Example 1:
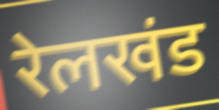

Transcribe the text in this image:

रेलखंड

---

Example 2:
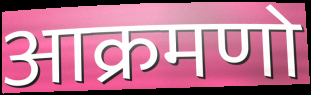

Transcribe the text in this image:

आक्रमणो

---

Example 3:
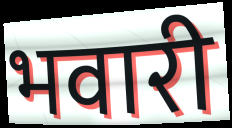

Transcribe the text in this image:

भवारी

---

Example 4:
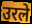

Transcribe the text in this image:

उरले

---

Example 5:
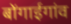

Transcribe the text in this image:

बोंगाईगांव